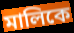
মালিকে